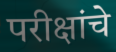
परीक्षांचे